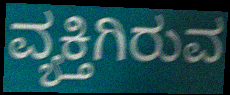
ವ್ಯಕ್ತಿಗಿರುವ